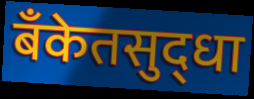
बँकेतसुद्धा